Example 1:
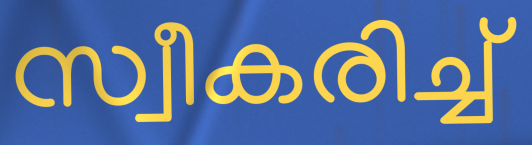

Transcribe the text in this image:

സ്വീകരിച്ച്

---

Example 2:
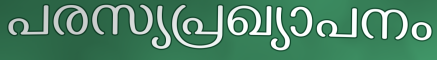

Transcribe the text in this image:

പരസ്യപ്രഖ്യാപനം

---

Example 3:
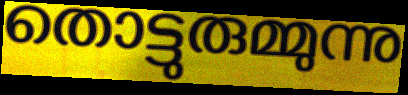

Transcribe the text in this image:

തൊട്ടുരുമ്മുന്നു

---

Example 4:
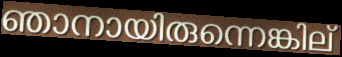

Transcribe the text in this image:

ഞാനായിരുന്നെങ്കില്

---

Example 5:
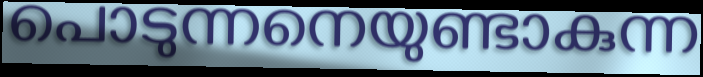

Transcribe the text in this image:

പൊടുന്നനെയുണ്ടാകുന്ന